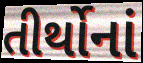
તીર્થોનાં